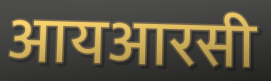
आयआरसी